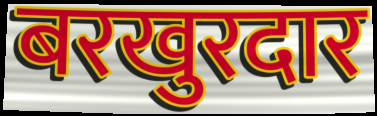
बरखुरदार